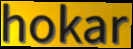
hokar